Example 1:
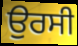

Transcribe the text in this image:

ਉਰਸੀ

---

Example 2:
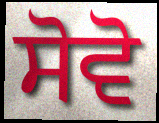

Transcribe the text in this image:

ਸੋਵੋ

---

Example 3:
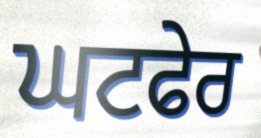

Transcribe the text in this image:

ਘਟਫੇਰ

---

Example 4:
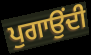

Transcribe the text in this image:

ਪੁਗਾਉਂਦੀ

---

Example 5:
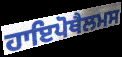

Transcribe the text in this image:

ਹਾਇਪੋਥੈਲਮਸ